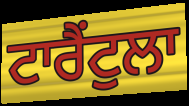
ਟਾਰੈਂਟੁਲਾ